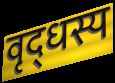
वृद्धस्य